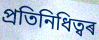
প্ৰতিনিধিত্বৰ